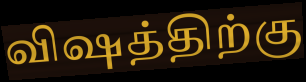
விஷத்திற்கு